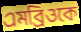
এমব্রিওকে